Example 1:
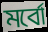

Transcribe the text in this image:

মর্বো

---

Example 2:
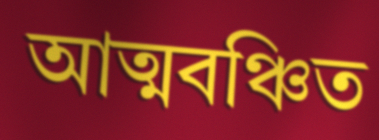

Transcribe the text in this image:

আত্মবঞ্চিত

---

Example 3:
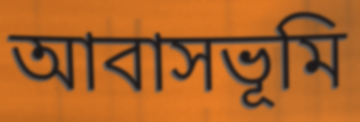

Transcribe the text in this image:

আবাসভূমি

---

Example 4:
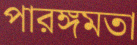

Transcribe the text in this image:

পারঙ্গমতা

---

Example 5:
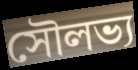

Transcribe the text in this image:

সৌলভ্য